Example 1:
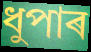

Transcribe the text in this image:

ধুপাৰ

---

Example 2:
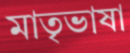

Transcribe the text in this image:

মাতৃভাষা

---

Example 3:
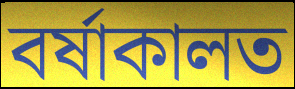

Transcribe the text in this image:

বৰ্ষাকালত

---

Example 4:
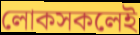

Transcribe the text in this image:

লোকসকলেই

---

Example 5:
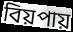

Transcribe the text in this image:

বিয়পায়